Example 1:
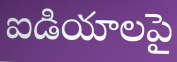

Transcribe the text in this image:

ఐడియాలపై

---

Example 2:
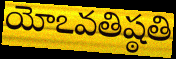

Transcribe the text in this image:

యోఽవతిష్ఠతి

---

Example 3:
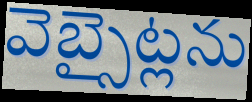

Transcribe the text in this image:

వెబ్సైట్లను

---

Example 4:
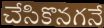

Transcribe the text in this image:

చేసికొనగనే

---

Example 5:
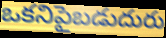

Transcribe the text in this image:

ఒకనిపైబడుదురు